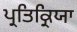
ਪ੍ਰਤਿਕ੍ਰਿਯਾ